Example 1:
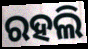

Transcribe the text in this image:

ରହଲି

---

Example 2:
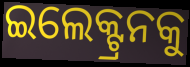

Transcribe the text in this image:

ଇଲେକ୍ଟ୍ରନକୁ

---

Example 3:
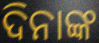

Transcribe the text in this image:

ଦିନାଙ୍କ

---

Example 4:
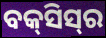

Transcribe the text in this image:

ବକ୍‌ସିସ୍‌ର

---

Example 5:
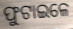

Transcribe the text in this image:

ଫୁଟାଇଳେ